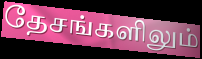
தேசங்களிலும்